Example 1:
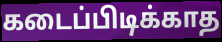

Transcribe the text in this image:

கடைப்பிடிக்காத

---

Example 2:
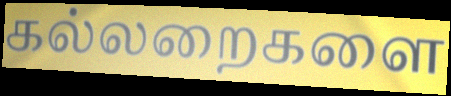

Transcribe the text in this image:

கல்லறைகளை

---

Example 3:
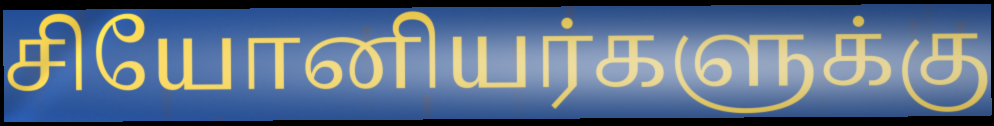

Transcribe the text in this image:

சியோனியர்களுக்கு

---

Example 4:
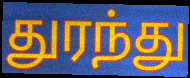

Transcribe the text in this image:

துரந்து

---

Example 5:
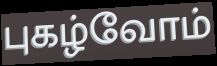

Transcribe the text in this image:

புகழ்வோம்